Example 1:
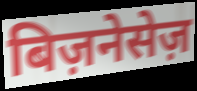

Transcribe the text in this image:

बिज़नेसेज़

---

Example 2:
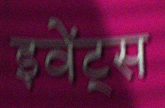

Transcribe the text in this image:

इवेंट्स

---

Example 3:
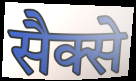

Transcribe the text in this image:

सैक्से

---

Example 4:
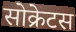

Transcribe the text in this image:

सोक्रेटस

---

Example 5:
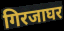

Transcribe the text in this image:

गिरजाघर